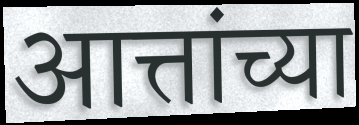
आत्तांच्या